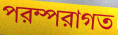
পরম্পরাগত